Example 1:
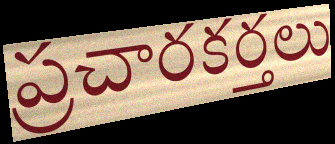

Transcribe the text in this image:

ప్రచారకర్తలు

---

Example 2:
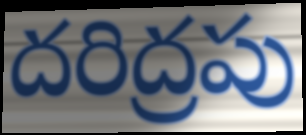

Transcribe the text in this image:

దరిద్రపు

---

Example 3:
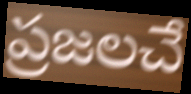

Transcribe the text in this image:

ప్రజలచే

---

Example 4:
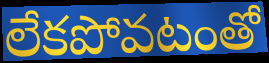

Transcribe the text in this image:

లేకపోవటంతో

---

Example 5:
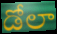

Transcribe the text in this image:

డోలా